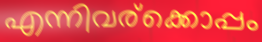
എന്നിവര്ക്കൊപ്പം